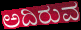
ಅದಿರುವ